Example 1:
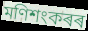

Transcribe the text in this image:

মণিশংকৰৰ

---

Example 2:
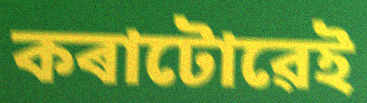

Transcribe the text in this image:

কৰাটোৱেই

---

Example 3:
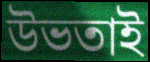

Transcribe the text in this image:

উভতাই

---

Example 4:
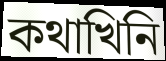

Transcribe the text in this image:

কথাখিনি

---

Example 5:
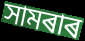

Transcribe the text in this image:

সামৰাৰ